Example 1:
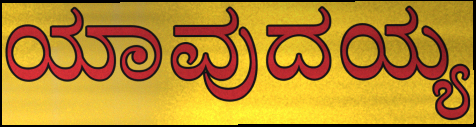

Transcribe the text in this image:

ಯಾವುದಯ್ಯ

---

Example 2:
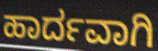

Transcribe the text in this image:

ಹಾರ್ದವಾಗಿ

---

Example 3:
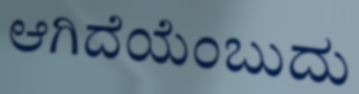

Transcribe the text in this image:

ಆಗಿದೆಯೆಂಬುದು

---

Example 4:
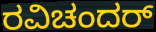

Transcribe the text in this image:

ರವಿಚಂದರ್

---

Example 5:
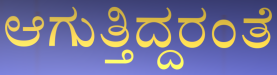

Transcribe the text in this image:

ಆಗುತ್ತಿದ್ದರಂತೆ